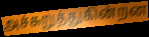
அச்சுறுத்துகின்றன